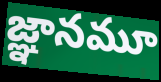
జ్ఞానమూ